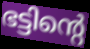
ഭട്ടിന്റെ